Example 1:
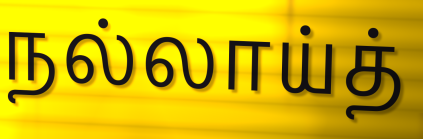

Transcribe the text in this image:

நல்லாய்த்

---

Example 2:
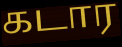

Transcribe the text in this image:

கடார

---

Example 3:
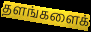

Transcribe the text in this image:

தளங்களைக்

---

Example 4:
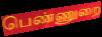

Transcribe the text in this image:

பெண்ணுறை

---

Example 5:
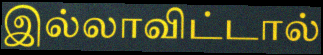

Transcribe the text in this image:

இல்லாவிட்டால்